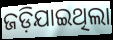
ଜଡ଼ିଯାଇଥିଲା